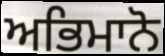
ਅਭਿਮਾਨੋ